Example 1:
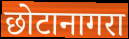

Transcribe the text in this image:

छोटानागरा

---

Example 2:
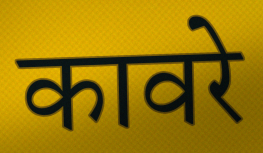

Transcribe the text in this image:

कावरे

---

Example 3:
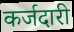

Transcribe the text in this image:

कर्जदारी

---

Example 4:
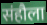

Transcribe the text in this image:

संहौला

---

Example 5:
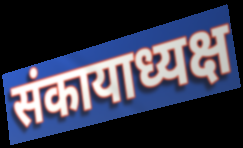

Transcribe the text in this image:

संकायाध्यक्ष